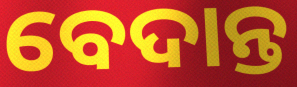
ବେଦାନ୍ତ